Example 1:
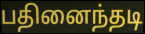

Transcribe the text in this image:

பதினைந்தடி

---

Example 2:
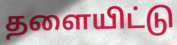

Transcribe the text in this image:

தளையிட்டு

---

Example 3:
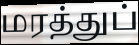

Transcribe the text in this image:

மரத்துப்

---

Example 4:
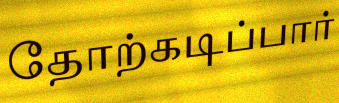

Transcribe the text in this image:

தோற்கடிப்பார்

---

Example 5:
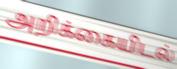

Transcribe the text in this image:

அறிக்கையிடல்